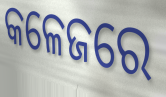
କଳେଜରେ